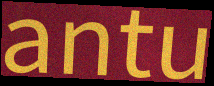
antu